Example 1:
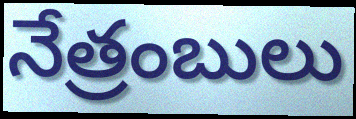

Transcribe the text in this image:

నేత్రంబులు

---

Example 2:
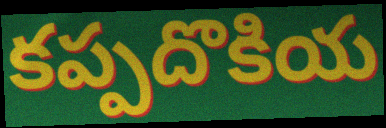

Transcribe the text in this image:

కప్పదొకియ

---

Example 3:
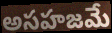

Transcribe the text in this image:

అసహజమే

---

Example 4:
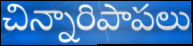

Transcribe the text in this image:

చిన్నారిపాపలు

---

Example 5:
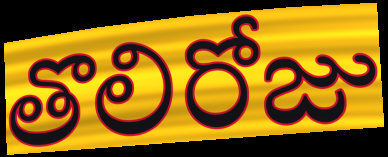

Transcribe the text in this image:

తొలిరోజు